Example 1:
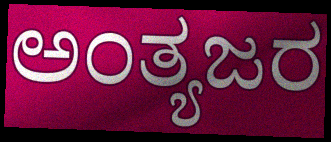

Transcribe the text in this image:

ಅಂತ್ಯಜರ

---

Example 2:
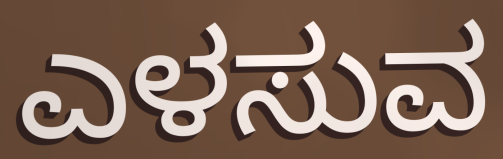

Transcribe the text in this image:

ಎಳಸುವ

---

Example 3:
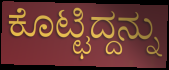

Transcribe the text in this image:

ಕೊಟ್ಟಿದ್ದನ್ನು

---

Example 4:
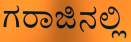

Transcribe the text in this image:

ಗರಾಜಿನಲ್ಲಿ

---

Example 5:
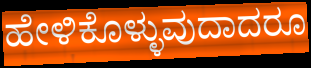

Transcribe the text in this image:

ಹೇಳಿಕೊಳ್ಳುವುದಾದರೂ